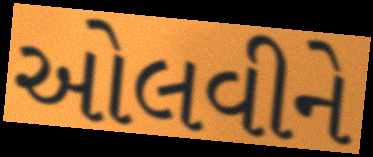
ઓલવીને